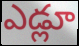
ఎడ్లూ